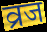
व्रज